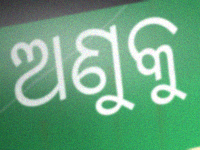
ଅଣୁକୁ